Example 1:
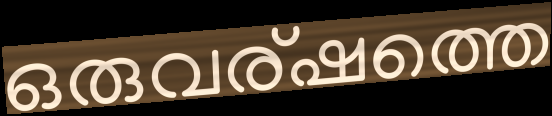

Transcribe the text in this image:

ഒരുവര്ഷത്തെ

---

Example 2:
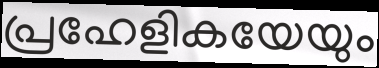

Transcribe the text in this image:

പ്രഹേളികയേയും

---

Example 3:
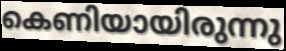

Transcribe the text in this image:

കെണിയായിരുന്നു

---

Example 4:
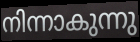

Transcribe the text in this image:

നിന്നാകുന്നു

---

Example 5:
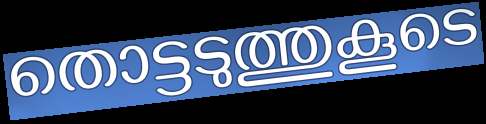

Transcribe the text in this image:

തൊട്ടടുത്തുകൂടെ